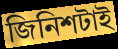
জিনিশটাই